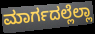
ಮಾರ್ಗದಲ್ಲೆಲ್ಲಾ